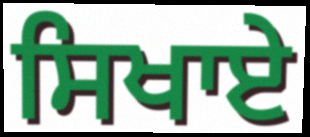
ਸਿਖਾਏ